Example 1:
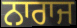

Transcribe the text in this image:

ਨਾਰਾਜ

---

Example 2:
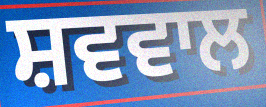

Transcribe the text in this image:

ਸ਼ਵਵਾਲ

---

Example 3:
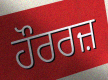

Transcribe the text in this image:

ਹੌਰਰਜ਼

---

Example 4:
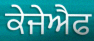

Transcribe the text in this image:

ਕੇਜੇਐਫ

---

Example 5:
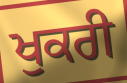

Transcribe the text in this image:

ਖੁਕਰੀ